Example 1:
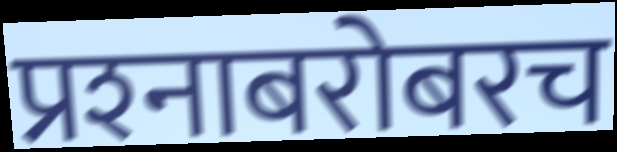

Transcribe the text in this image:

प्रश्‍नाबरोबरच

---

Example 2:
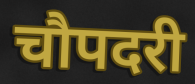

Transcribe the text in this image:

चौपदरी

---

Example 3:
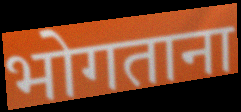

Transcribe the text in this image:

भोगताना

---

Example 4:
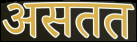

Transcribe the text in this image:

असतत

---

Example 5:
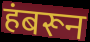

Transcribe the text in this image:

हंबरून